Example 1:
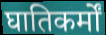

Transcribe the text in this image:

घातिकर्मों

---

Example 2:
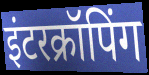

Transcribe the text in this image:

इंटरक्रॉपिंग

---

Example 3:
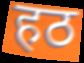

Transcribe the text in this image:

हठ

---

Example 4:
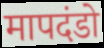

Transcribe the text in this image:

मापदंडो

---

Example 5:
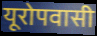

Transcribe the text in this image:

यूरोपवासी